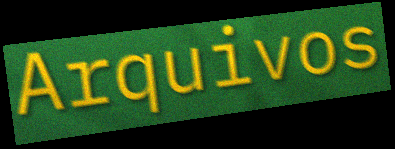
Arquivos